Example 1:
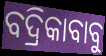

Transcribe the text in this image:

ବଦ୍ରିକାବାବୁ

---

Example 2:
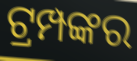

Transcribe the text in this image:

ଟ୍ରମ୍ପଙ୍କର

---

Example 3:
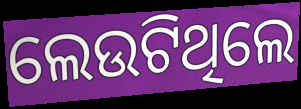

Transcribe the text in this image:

ଲେଉଟିଥିଲେ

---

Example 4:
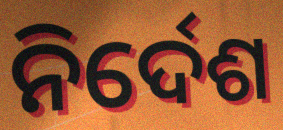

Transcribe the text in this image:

ନିର୍ଦେଶ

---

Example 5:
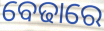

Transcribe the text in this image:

ବେଢାରେ